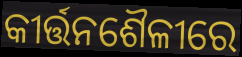
କୀର୍ତ୍ତନଶୈଳୀରେ